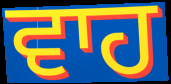
ਵਾਹ